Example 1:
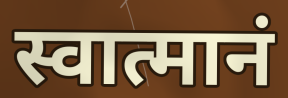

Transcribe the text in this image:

स्वात्मानं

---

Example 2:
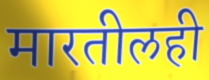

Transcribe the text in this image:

मारतीलही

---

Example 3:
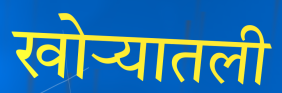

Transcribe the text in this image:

खोऱ्यातली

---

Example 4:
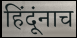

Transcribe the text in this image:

हिंदूंनाच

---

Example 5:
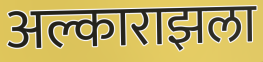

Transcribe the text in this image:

अल्काराझला